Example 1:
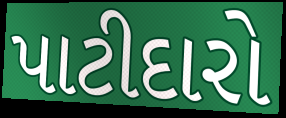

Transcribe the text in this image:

પાટીદારો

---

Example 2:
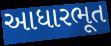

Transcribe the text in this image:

આધારભૂત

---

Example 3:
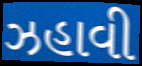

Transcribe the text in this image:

ઝહાવી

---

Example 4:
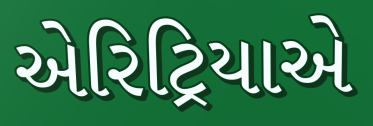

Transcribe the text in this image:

એરિટ્રિયાએ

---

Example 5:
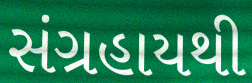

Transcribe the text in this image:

સંગ્રહાયથી